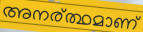
അനര്ത്ഥമാണ്